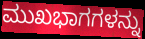
ಮುಖಭಾಗಗಳನ್ನು